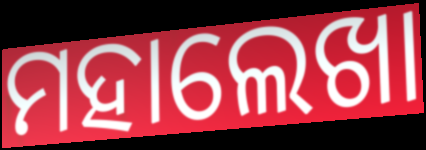
ମହାଲେଖା